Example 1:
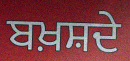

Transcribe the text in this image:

ਬਖ਼ਸ਼ਦੇ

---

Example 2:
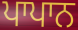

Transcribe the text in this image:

ਪਾਪਾਨ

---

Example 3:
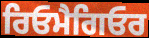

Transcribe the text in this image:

ਰਿਓਮੈਗਿਓਰ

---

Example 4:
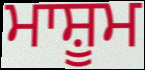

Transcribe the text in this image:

ਮਾਸ਼ੂਮ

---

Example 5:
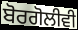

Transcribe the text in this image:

ਬੋਰਗੋਲੀਵੀ